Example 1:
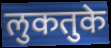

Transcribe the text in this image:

लुकतुके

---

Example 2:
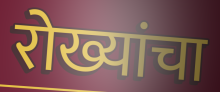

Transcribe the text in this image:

रोख्यांचा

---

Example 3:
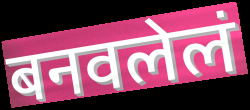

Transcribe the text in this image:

बनवलेलं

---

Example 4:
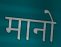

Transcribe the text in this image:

मानो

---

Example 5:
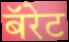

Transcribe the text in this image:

बॅरेट